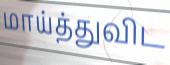
மாய்த்துவிட